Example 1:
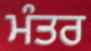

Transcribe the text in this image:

ਮੰਤਰ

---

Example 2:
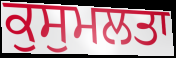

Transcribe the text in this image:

ਕੁਸੁਮਲਤਾ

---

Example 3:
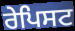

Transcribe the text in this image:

ਰੇਪਿਸਟ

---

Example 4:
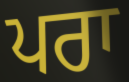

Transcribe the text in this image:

ਪਰਾ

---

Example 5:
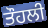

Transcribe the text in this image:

ਤੌਹਲੀ